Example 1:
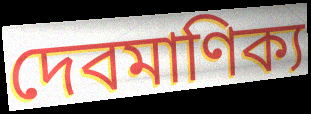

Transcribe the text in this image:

দেবমাণিক্য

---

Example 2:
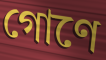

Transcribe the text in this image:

গোণে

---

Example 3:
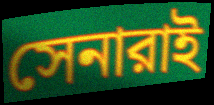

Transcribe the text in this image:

সেনারাই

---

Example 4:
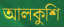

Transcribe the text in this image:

আলকুশি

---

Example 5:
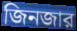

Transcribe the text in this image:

জিনজার